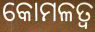
କୋମଳତ୍ୱ